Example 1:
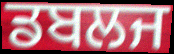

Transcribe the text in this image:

ਡਬਲਜ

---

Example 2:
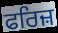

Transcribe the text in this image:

ਫਰਿਜ਼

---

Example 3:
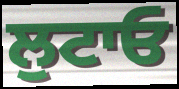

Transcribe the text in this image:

ਲੁਟਾਓ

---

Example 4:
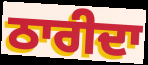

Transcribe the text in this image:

ਠਾਰੀਦਾ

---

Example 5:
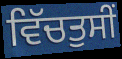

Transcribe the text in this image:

ਵਿੱਚਤੁਸੀਂ